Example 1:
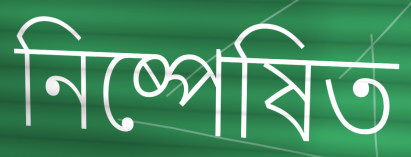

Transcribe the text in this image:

নিষ্পেষিত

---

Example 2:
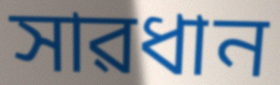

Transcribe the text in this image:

সাৱধান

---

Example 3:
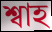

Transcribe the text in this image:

শ্বাহ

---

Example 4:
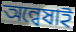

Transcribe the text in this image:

অন্বেষাই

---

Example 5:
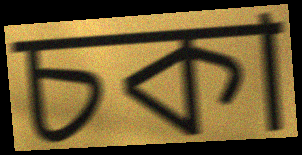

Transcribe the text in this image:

চকা